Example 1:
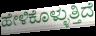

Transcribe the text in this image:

ಹೇಳಿಕೊಳ್ಳುತ್ತಿದೆ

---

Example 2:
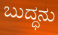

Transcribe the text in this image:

ಬುದ್ಧನು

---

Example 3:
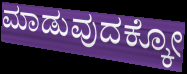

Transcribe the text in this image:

ಮಾಡುವುದಕ್ಕೋ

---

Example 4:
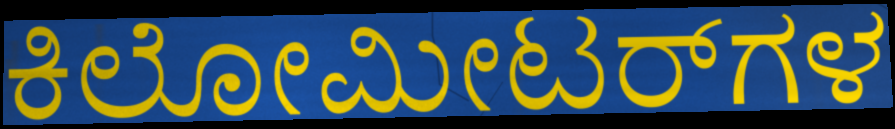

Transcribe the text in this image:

ಕಿಲೋಮೀಟರ್‌ಗಳ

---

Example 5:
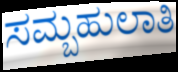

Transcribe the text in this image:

ಸಮ್ಬಹುಲಾತಿ